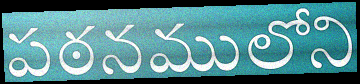
పఠనములోని